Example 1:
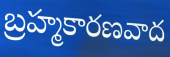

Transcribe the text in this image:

బ్రహ్మకారణవాద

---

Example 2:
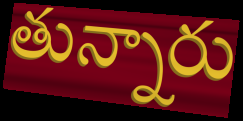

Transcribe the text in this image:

తున్నారు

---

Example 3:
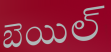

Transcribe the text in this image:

బెయిల్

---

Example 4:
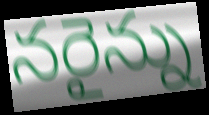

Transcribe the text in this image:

నరైన్ను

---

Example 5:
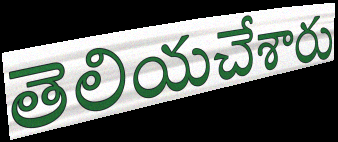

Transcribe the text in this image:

తెలియచేశారు